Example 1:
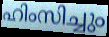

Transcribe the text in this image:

ഹിംസിച്ചും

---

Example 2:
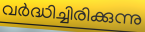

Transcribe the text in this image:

വർദ്ധിച്ചിരിക്കുന്നു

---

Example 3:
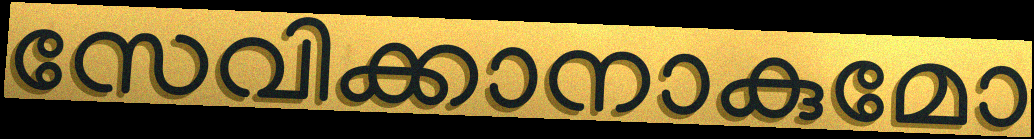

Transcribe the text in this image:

സേവിക്കാനാകുമോ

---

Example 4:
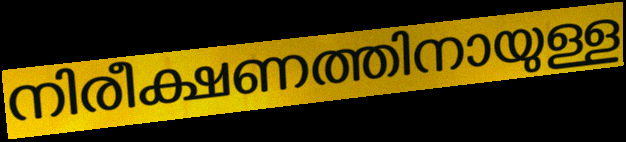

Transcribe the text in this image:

നിരീക്ഷണത്തിനായുള്ള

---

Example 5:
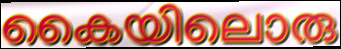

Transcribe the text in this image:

കൈയിലൊരു